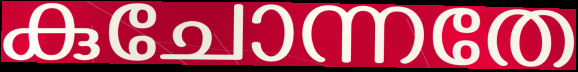
കുചോന്നതേ